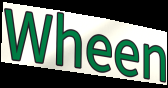
Wheen